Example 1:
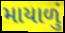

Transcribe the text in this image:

માયાળું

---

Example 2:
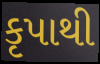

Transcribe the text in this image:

કૃપાથી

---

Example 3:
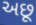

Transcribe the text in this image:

અછૂ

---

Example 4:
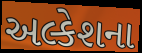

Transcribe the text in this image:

અલ્કેશના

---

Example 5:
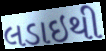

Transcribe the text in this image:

લડાઇથી